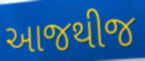
આજથીજ